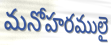
మనోహరములై